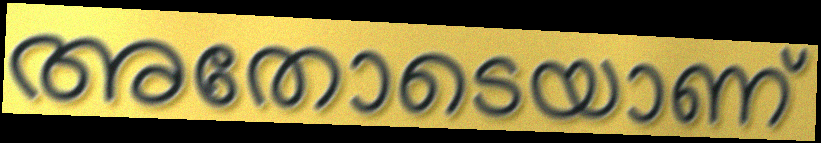
അതോടെയാണ്